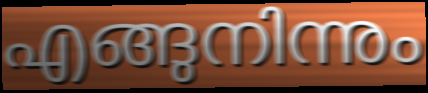
എങ്ങുനിന്നും